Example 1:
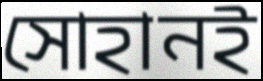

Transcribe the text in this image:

সোহানই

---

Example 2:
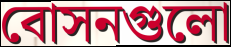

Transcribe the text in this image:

বোসনগুলো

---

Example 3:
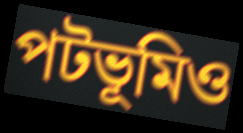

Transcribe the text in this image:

পটভূমিও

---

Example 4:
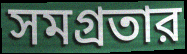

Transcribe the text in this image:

সমগ্রতার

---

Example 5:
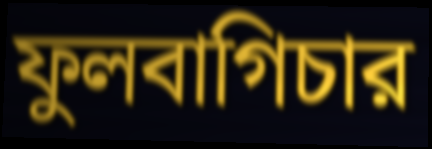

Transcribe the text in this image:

ফুলবাগিচার